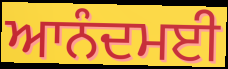
ਆਨੰਦਮਈ